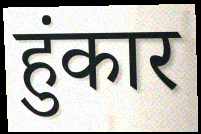
हुंकार